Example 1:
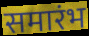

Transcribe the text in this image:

समारंभ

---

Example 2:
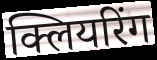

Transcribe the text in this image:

क्लियरिंग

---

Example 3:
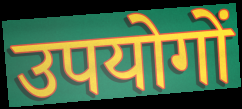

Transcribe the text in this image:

उपयोगों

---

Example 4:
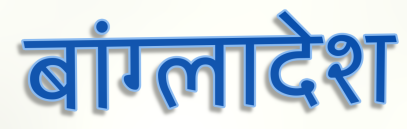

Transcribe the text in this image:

बांग्लादेश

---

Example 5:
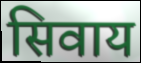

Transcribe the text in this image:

सिवाय